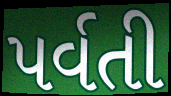
પર્વતી